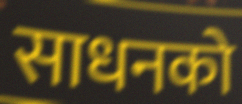
साधनको